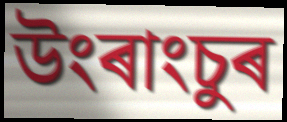
উংৰাংচুৰ